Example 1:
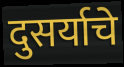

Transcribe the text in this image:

दुसर्याचे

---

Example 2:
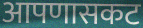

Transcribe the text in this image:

आपणासकट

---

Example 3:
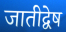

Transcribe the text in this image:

जातीद्वेष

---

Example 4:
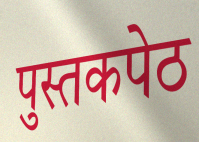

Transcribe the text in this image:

पुस्तकपेठ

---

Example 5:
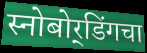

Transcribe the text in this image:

स्नोबोर्डिंगचा